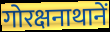
गोरक्षनाथानें